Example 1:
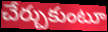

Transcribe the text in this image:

చేర్చుకుంటూ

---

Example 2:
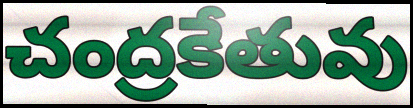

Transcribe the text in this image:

చంద్రకేతువు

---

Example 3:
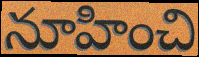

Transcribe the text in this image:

నూహించి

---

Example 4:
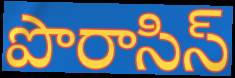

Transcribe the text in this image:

పొరాసిస్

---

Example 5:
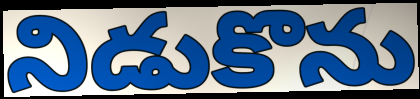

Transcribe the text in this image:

నిడుకొను